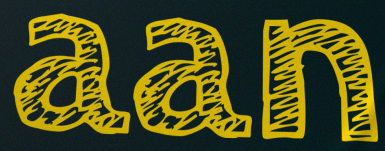
aan